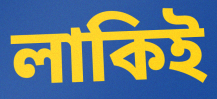
লাকিই